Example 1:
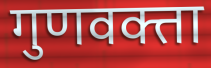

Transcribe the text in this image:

गुणवक्ता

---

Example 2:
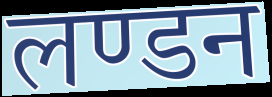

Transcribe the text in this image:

लण्डन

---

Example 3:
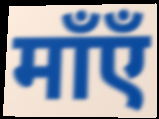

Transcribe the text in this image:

माँएँ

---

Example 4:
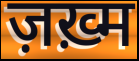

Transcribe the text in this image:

ज़ख़्म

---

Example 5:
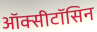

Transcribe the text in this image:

ऑक्सीटॉसिन